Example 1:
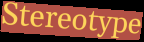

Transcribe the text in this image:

Stereotype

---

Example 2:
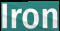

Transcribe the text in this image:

Iron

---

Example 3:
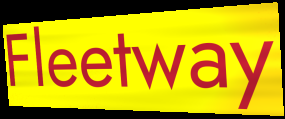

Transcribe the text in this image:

Fleetway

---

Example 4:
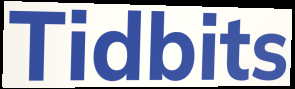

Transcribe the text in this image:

Tidbits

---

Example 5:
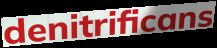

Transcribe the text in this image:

denitrificans